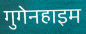
गुगेनहाइम